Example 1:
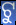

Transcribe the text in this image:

ଟୁ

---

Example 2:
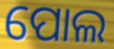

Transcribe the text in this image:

ପୋଲ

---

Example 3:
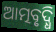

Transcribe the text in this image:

ଆତ୍ମବୃଦ୍ଧି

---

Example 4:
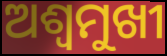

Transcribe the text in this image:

ଅଶ୍ୱମୁଖୀ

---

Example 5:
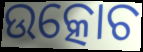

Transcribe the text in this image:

ଉତ୍କୋଚ